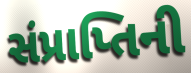
સંપ્રાપ્તિની